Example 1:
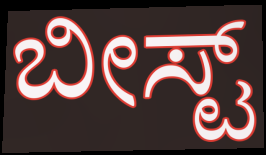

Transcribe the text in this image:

ಬೀಸ್ಟ್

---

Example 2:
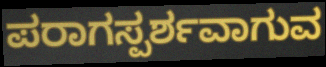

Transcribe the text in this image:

ಪರಾಗಸ್ಪರ್ಶವಾಗುವ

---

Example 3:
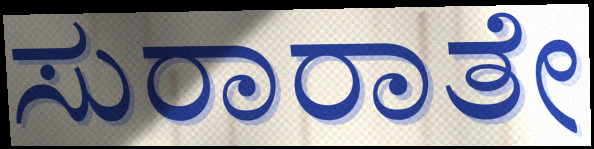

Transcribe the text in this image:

ಸುರಾರಾತೇ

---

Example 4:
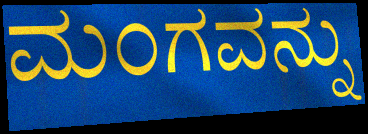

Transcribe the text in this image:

ಮಂಗವನ್ನು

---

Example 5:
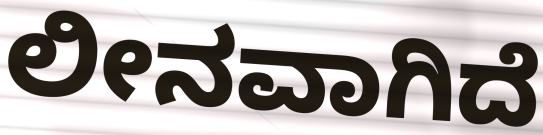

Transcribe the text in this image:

ಲೀನವಾಗಿದೆ